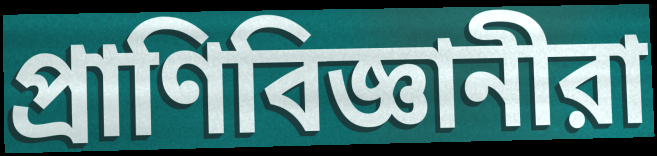
প্রাণিবিজ্ঞানীরা